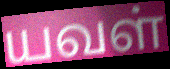
யவள்